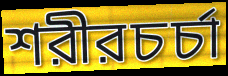
শরীরচর্চা